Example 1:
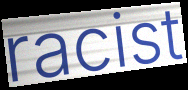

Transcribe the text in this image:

racist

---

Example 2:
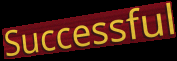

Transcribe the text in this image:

Successful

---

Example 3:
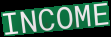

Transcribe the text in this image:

INCOME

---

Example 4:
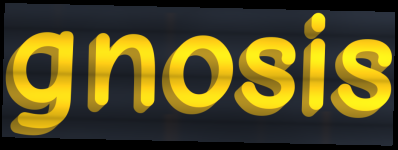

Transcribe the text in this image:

gnosis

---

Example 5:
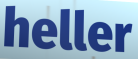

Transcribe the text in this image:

heller